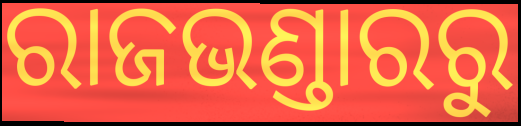
ରାଜଭଣ୍ଡାରରୁ